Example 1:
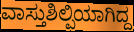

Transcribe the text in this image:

ವಾಸ್ತುಶಿಲ್ಪಿಯಾಗಿದ್ದ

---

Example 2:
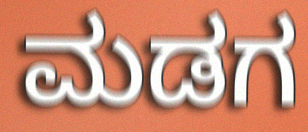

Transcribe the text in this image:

ಮಡಗ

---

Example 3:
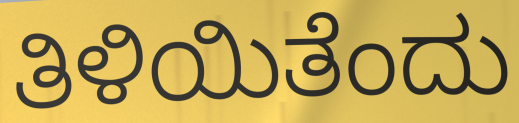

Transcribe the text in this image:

ತಿಳಿಯಿತೆಂದು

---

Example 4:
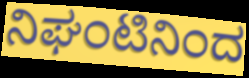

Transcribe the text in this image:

ನಿಘಂಟಿನಿಂದ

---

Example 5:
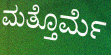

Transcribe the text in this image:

ಮತ್ತೊರ್ಮೆ